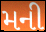
મની